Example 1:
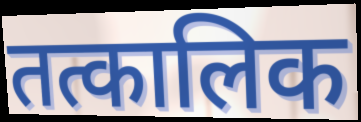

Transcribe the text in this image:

तत्कालिक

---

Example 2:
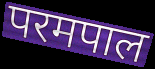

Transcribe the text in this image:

परमपाल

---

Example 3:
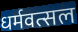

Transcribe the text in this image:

धर्मवत्सल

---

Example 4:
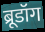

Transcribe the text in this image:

ब्रूडॉग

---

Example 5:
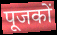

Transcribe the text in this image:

पूजकों